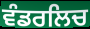
ਵੰਡਰਲਿਚ